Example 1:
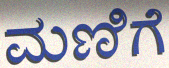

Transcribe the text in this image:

ಮಣಿಗೆ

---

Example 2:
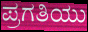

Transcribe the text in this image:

ಪ್ರಗತಿಯು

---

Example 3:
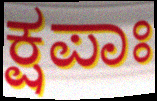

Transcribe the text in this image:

ಕ್ಷಪಾಃ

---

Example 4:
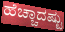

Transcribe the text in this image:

ಹೆಚ್ಚಾದಷ್ಟು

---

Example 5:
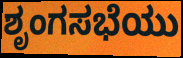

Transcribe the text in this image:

ಶೃಂಗಸಭೆಯು